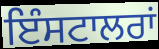
ਇੰਸਟਾਲਰਾਂ